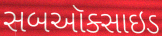
સબઑક્સાઇડ